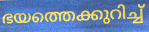
ഭയത്തെക്കുറിച്ച്